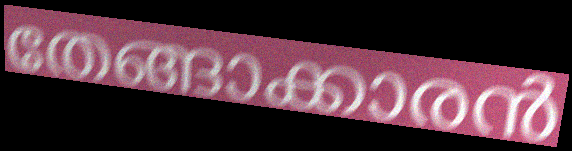
തേങ്ങാക്കാരൻ